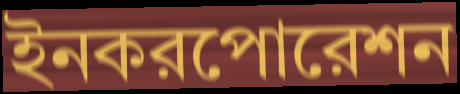
ইনকরপোরেশন